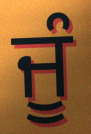
ਜੂੰ